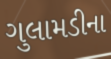
ગુલામડીના